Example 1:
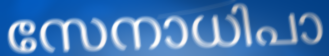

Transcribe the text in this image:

സേനാധിപാ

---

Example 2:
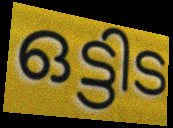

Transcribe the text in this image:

ഒട്ടിട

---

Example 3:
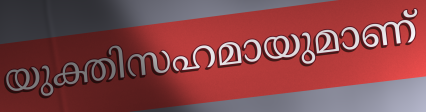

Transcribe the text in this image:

യുക്തിസഹമായുമാണ്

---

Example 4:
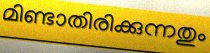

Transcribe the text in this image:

മിണ്ടാതിരിക്കുന്നതും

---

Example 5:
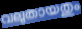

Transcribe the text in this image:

വലുതായതും